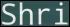
Shri